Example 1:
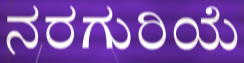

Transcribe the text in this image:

ನರಗುರಿಯೆ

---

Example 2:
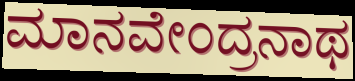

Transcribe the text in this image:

ಮಾನವೇಂದ್ರನಾಥ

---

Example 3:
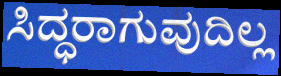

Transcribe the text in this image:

ಸಿದ್ಧರಾಗುವುದಿಲ್ಲ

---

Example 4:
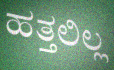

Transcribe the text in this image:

ಹತ್ತಲಿಲ್ಲ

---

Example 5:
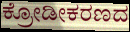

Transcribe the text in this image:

ಕ್ರೋಡೀಕರಣದ